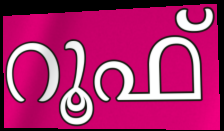
റൂഫ്